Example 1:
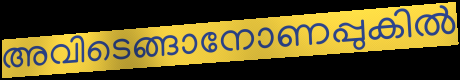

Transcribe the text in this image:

അവിടെങ്ങാനോണപ്പുകിൽ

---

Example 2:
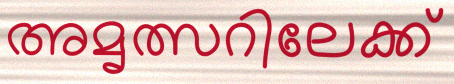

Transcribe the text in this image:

അമൃത്സറിലേക്ക്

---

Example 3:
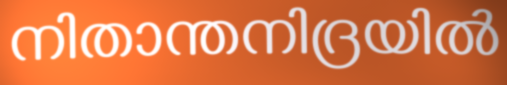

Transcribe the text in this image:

നിതാന്തനിദ്രയിൽ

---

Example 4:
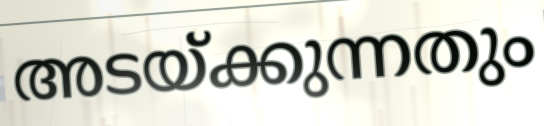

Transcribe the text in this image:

അടയ്ക്കുന്നതും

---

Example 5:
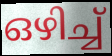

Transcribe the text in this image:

ഒഴിച്ച്